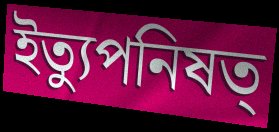
ইত্যুপনিষত্